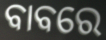
ବାବରେ